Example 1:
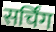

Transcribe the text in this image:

सर्चिंग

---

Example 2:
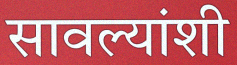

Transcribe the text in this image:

सावल्यांशी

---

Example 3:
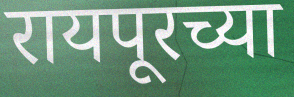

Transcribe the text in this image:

रायपूरच्या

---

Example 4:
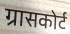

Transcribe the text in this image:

ग्रासकोर्ट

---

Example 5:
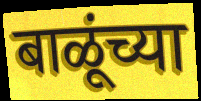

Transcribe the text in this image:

बाळूंच्या